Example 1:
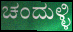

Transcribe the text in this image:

ಚಂದುಳ್ಳಿ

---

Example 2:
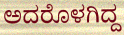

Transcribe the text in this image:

ಅದರೊಳಗಿದ್ದ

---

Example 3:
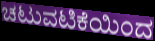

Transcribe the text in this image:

ಚಟುವಟಿಕೆಯಿಂದ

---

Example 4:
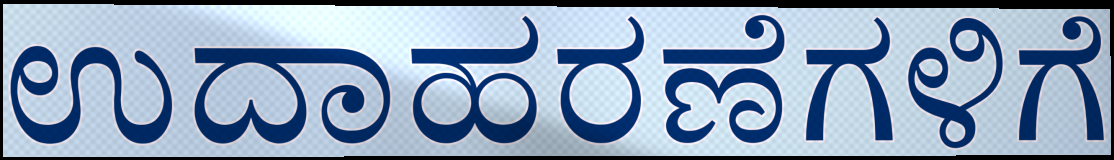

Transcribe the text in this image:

ಉದಾಹರಣೆಗಳಿಗೆ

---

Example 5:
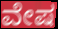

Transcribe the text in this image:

ವೇಷ